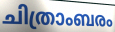
ചിത്രാംബരം